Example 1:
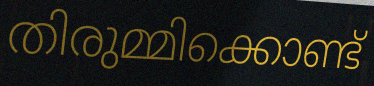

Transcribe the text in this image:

തിരുമ്മിക്കൊണ്ട്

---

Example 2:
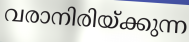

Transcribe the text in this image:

വരാനിരിയ്ക്കുന്ന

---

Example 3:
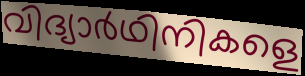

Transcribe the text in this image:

വിദ്യാർഥിനികളെ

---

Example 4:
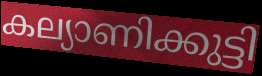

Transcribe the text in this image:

കല്യാണിക്കുട്ടി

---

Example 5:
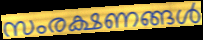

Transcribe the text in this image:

സംരക്ഷണങ്ങൾ